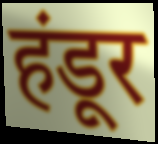
हंडूर